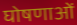
घोषणाओं